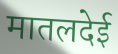
मातलदेई